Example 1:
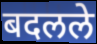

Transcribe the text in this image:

बदलले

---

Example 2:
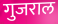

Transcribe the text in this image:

गुजराल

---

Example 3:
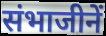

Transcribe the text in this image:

संभाजीनें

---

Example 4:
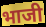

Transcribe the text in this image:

भाजी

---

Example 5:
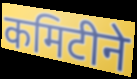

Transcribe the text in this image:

कमिटीने